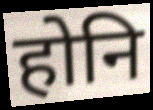
होनि